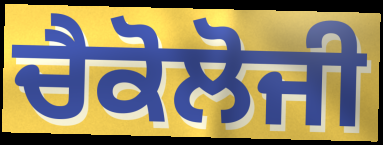
ਚੈਕੋਲੋਜੀ